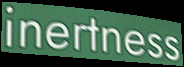
inertness